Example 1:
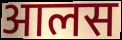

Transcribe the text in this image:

आलस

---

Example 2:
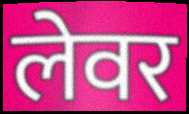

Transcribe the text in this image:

लेवर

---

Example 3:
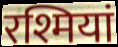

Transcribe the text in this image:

रश्मियां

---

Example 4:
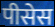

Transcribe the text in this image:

पीसेस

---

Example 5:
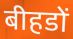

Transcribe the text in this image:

बीहडों